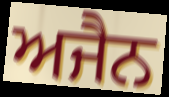
ਅਜੈਨ